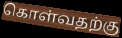
கொள்வதற்கு